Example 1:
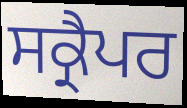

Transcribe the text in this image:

ਸਕ੍ਰੈਪਰ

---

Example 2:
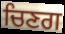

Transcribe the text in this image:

ਚਿਣਗ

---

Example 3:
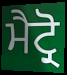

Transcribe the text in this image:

ਮੈਟ੍ਰੋ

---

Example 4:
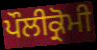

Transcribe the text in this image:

ਪੌਲੀਕ੍ਰੋਮੀ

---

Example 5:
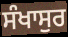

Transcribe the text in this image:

ਸੰਖਾਸੁਰ